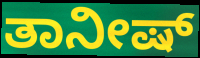
ತಾನೀಷ್